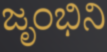
ಜೃಂಭಿನಿ